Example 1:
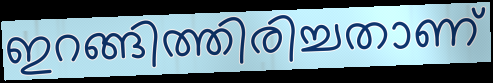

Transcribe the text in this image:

ഇറങ്ങിത്തിരിച്ചതാണ്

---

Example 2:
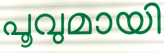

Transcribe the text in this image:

പൂവുമായി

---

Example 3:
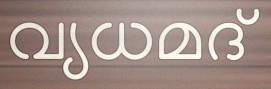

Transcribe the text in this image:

വ്യധമദ്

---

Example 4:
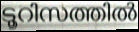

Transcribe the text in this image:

ടൂറിസത്തിൽ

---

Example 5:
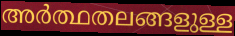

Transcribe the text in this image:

അർത്ഥതലങ്ങളുള്ള